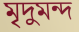
মৃদুমন্দ